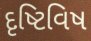
દૃષ્ટિવિષ